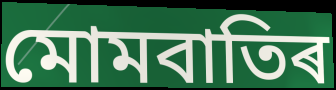
মোমবাতিৰ